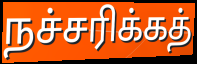
நச்சரிக்கத்